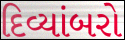
દિવ્યાંબરો